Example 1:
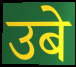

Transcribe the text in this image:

उबे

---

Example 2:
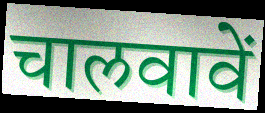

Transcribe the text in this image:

चालवावें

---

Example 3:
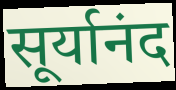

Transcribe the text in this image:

सूर्यानंद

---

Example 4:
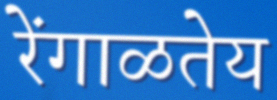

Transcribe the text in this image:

रेंगाळतेय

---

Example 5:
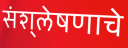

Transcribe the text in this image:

संश्लेषणाचे